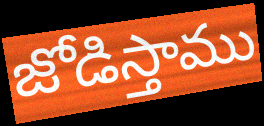
జోడిస్తాము